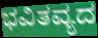
ಭವಿತವ್ಯದ